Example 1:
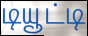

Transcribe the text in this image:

டியூட்டி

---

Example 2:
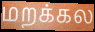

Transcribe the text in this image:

மறக்கல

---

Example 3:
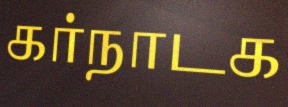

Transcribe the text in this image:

கர்நாடக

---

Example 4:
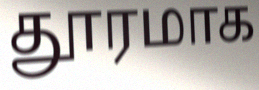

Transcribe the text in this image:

தூரமாக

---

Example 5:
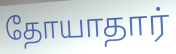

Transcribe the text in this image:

தோயாதார்